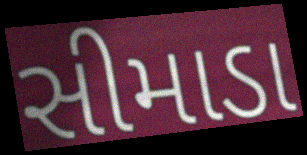
સીમાડા